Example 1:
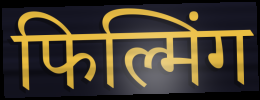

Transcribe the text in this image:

फिल्मिंग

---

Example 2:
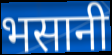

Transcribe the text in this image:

भसानी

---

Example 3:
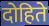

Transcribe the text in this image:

दोहिते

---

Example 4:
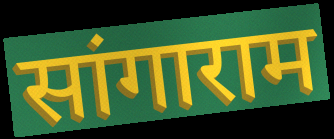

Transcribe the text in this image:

सांगाराम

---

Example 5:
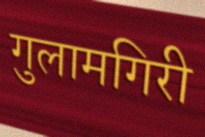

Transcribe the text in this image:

गुलामगिरी